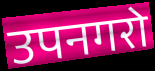
उपनगरो